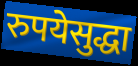
रुपयेसुद्धा